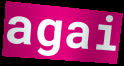
agai